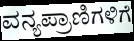
ವನ್ಯಪ್ರಾಣಿಗಳಿಗೆ